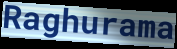
Raghurama